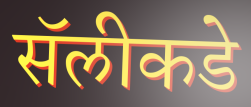
सॅलीकडे